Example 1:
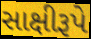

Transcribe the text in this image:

સાક્ષીરૂપે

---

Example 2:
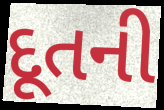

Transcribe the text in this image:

દૂતની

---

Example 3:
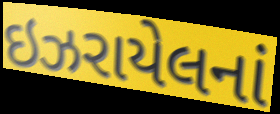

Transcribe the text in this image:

ઇઝરાયેલનાં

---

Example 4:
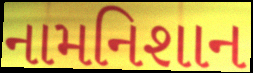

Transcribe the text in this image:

નામનિશાન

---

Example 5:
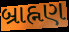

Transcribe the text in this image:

બ્રાહ્નણ